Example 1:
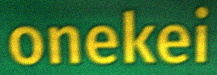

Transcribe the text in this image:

onekei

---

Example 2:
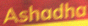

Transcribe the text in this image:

Ashadha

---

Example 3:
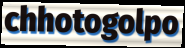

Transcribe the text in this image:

chhotogolpo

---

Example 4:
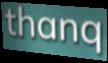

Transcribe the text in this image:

thanq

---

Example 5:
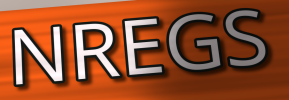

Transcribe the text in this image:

NREGS